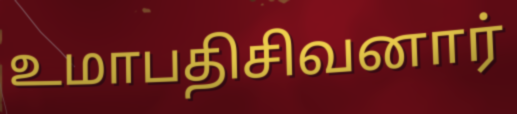
உமாபதிசிவனார்